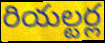
రియల్టర్ల